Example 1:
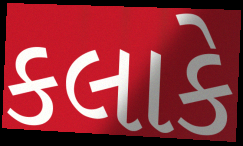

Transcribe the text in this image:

કલાકે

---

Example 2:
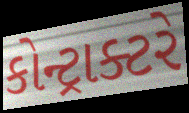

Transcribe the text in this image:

કોન્ટ્રાક્ટરે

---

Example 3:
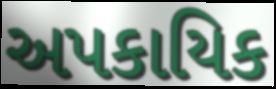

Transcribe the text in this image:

અપકાયિક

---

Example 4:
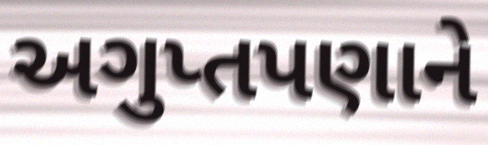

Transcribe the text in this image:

અગુપ્તપણાને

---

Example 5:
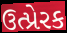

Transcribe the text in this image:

ઉત્પ્રેરક